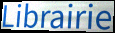
Librairie